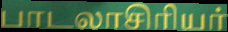
பாடலாசிரியர்